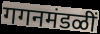
गगनमंडळीं